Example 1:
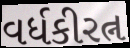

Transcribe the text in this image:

વર્ધકીરત્ન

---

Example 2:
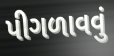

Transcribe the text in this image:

પીગળાવવું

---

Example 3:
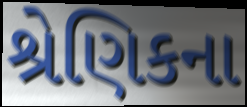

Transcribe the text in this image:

શ્રેણિકના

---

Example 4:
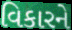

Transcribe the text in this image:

વિકારને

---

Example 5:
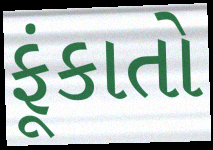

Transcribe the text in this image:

ફૂંકાતો